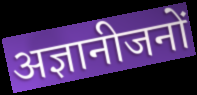
अज्ञानीजनों